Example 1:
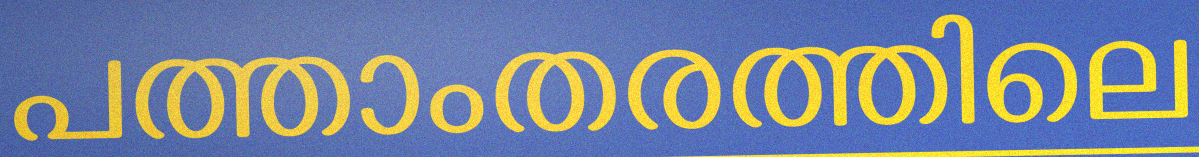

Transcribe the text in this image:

പത്താംതരത്തിലെ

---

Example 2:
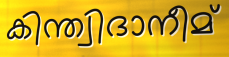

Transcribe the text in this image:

കിന്ത്വിദാനീമ്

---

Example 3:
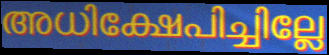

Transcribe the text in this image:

അധിക്ഷേപിച്ചില്ലേ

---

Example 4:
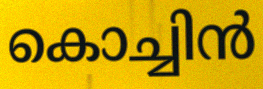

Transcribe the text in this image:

കൊച്ചിൻ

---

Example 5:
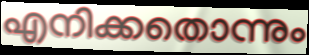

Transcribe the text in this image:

എനിക്കതൊന്നും